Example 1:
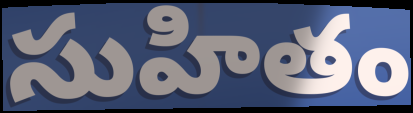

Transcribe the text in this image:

సుహితం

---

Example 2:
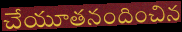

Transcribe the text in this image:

చేయూతనందించిన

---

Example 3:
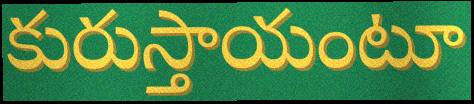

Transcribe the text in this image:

కురుస్తాయంటూ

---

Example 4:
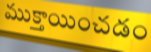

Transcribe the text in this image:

ముక్తాయించడం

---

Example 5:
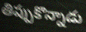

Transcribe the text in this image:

తిప్పుకొన్నాడు